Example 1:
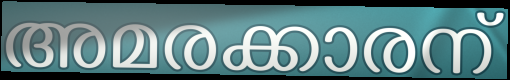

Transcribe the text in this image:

അമരക്കാരന്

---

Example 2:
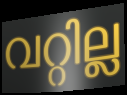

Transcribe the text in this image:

വറ്റില്ല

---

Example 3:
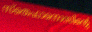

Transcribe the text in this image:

സ്തെഫാനൊസിന്റെ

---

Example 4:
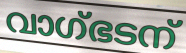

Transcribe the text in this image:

വാഗ്ഭടന്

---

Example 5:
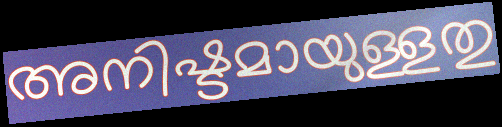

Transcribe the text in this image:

അനിഷ്ടമായുള്ളതു